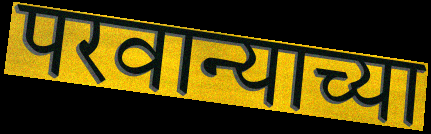
परवान्याच्या